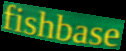
fishbase